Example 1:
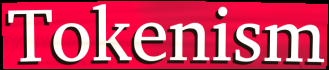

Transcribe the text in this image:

Tokenism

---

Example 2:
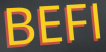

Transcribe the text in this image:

BEFI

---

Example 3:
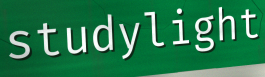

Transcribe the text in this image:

studylight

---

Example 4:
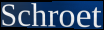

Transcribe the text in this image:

Schroet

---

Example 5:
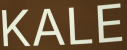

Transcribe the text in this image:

KALE